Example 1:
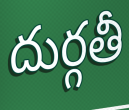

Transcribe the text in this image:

దుర్గతీ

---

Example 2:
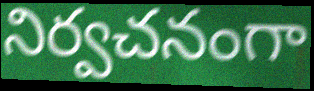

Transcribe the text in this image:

నిర్వచనంగా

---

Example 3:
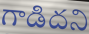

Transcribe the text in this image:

గాడిదని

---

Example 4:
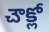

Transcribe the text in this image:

చౌక్లో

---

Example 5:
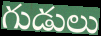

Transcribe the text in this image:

గుడులు